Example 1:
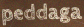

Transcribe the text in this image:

peddaga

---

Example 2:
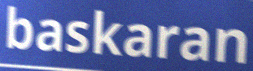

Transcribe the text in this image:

baskaran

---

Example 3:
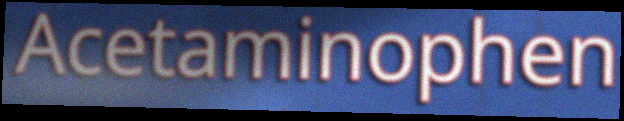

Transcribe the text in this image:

Acetaminophen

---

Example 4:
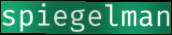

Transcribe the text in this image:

spiegelman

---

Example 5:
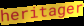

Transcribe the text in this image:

heritager